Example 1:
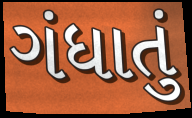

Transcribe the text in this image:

ગંધાતું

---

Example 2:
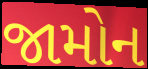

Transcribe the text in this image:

જામોન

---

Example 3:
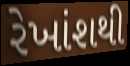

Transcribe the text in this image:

રેખાંશથી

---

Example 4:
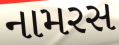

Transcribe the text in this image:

નામરસ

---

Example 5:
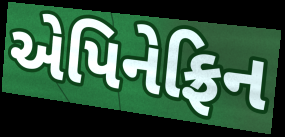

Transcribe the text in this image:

એપિનેફ્રિન